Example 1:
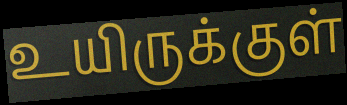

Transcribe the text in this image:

உயிருக்குள்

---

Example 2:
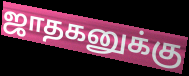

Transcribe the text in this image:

ஜாதகனுக்கு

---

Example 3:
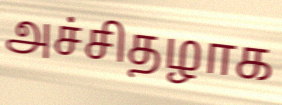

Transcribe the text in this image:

அச்சிதழாக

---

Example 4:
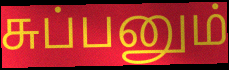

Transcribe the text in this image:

சுப்பனும்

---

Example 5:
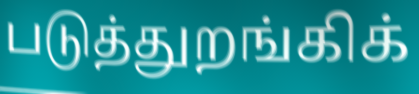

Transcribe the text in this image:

படுத்துறங்கிக்